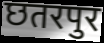
छतरपुर